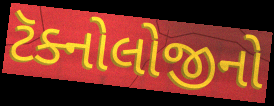
ટૅક્નોલોજીનો